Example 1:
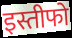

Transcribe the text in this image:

इस्तीफो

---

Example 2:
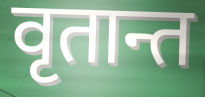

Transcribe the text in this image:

वृतान्त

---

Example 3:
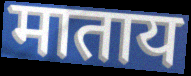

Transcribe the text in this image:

माताय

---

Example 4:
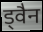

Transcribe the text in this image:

ड्वैन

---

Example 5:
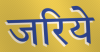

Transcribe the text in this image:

जरिये